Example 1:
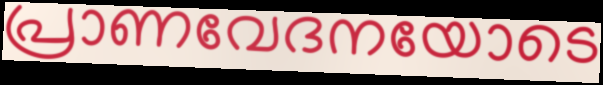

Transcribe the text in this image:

പ്രാണവേദനയോടെ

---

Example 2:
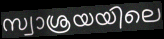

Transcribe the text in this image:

സ്വാശ്രയയിലെ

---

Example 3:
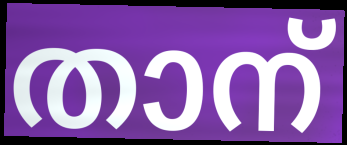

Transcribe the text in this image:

താന്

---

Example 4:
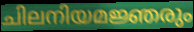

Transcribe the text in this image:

ചിലനിയമജ്ഞരും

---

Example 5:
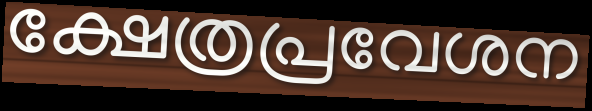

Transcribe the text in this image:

ക്ഷേത്രപ്രവേശന